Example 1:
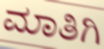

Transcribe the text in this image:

ಮಾತಿಗಿ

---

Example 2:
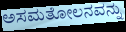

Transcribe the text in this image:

ಅಸಮತೋಲನವನ್ನು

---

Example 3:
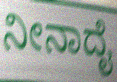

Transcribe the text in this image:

ನೀನಾದೈ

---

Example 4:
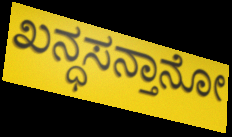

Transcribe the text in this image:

ಖನ್ಧಸನ್ತಾನೋ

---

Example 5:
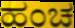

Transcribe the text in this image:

ಹಂಚ